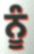
ਨੂੰ